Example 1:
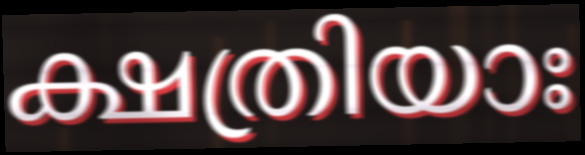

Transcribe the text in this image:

ക്ഷത്രിയാഃ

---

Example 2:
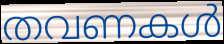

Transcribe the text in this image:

തവണകൾ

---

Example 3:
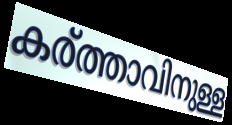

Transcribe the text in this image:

കര്ത്താവിനുള്ള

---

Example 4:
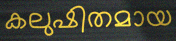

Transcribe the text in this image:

കലുഷിതമായ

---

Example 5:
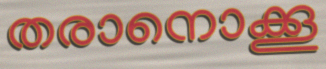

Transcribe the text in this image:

തരാനൊക്കൂ